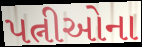
પત્નીઓના